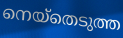
നെയ്തെടുത്ത